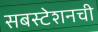
सबस्टेशनची